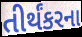
તીર્થંકરના